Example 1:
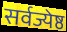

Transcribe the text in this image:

सर्वज्येष्ठ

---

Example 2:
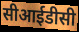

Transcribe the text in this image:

सीआईडीसी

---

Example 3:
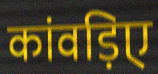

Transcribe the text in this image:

कांवड़िए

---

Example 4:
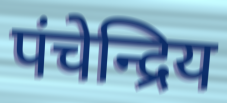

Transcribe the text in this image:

पंचेन्द्रिय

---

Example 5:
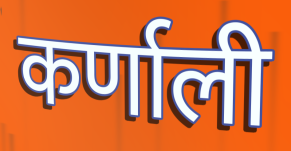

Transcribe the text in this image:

कर्णाली